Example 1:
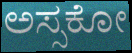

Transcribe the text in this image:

ಅಸ್ಸಕೋ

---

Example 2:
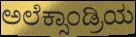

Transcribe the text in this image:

ಅಲೆಕ್ಸಾಂಡ್ರಿಯ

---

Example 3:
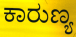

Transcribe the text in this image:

ಕಾರುಣ್ಯ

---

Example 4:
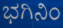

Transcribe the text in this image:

ಭಗಿನಿಂ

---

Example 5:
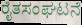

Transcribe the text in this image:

ರೈತಸಂಘಟನೆ